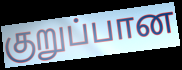
குறுப்பான